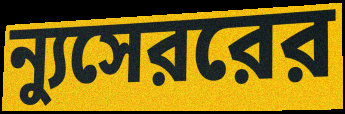
ন্যুসেররের